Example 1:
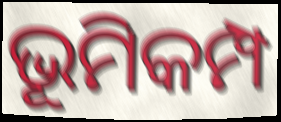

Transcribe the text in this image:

ଭୂମିକମ୍ପ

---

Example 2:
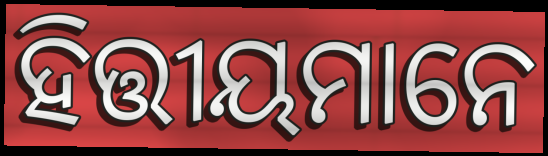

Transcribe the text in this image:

ହିତ୍ତୀୟମାନେ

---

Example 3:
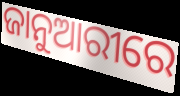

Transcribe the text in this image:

ଜାନୁଆରୀରେ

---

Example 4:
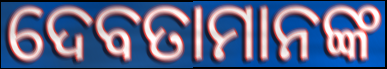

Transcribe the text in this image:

ଦେବତାମାନଙ୍କ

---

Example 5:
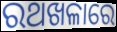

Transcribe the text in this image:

ରଥଖଳାରେ